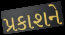
પ્રકાશને